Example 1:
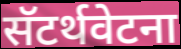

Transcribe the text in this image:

सॅटर्थवेटना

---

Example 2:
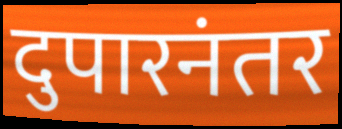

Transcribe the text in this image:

दुपारनंतर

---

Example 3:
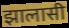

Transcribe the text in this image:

झालासी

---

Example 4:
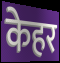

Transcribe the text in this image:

केहर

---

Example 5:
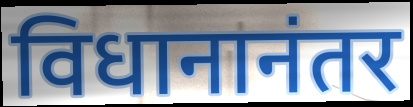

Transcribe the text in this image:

विधानानंतर